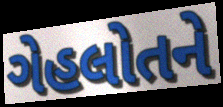
ગેહલોતને